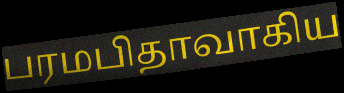
பரமபிதாவாகிய